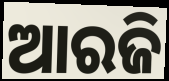
ଆରଜି